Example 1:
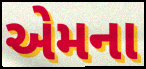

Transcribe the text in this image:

એમના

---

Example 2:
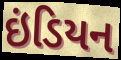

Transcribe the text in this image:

ઇંડિયન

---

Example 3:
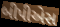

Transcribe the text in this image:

બીપીએસ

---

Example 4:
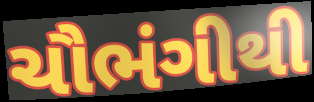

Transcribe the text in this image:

ચૌભંગીથી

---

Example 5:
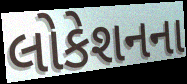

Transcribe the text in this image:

લોકેશનના